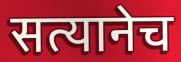
सत्यानेच